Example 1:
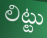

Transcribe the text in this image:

లిట్టు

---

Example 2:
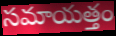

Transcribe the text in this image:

సమాయత్తం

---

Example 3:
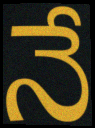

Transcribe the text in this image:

నే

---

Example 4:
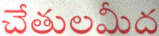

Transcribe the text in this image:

చేతులమీద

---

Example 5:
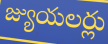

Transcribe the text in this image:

జ్యుయలర్లు